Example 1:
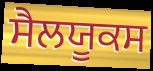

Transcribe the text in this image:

ਸੈਲਯੂਕਸ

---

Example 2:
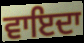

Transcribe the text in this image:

ਵਾਇਦਾ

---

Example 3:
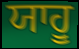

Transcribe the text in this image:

ਯਾਹੂ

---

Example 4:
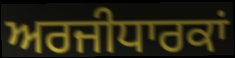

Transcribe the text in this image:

ਅਰਜੀਧਾਰਕਾਂ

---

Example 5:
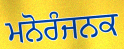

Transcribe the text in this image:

ਮਨੋਰੰਜਨਕ